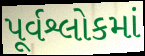
પૂર્વશ્લોકમાં